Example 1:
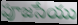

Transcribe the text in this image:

పూజసేయు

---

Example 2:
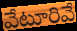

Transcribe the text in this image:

వేటూరివే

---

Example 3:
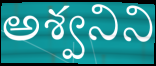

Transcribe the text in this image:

అశ్వనిని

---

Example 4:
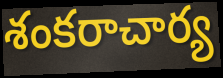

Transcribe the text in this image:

శంకరాచార్య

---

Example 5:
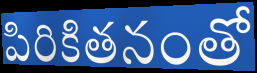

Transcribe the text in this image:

పిరికితనంతో